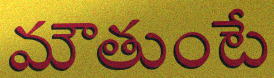
మౌతుంటే